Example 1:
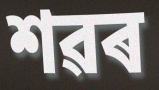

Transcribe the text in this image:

শৱৰ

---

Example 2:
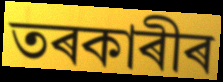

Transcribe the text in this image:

তৰকাৰীৰ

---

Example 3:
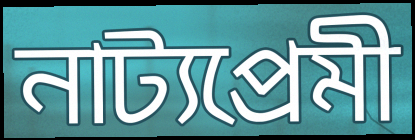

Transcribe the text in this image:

নাট্যপ্ৰেমী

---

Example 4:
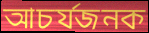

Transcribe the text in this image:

আচৰ্যজনক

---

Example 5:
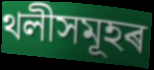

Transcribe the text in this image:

থলীসমূহৰ